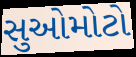
સુઓમોટો